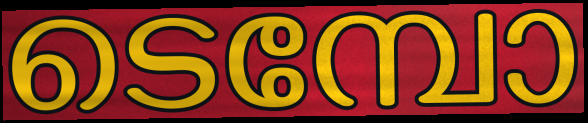
ടെമ്പോ